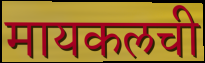
मायकलची